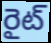
రైట్